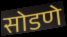
सोडणे